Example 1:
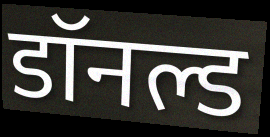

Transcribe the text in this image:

डॉनल्ड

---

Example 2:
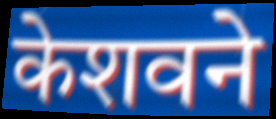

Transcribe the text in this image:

केशवने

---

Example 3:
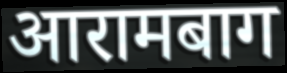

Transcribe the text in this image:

आरामबाग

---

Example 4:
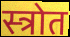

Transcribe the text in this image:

स्त्रोत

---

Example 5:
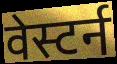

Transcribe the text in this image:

वेस्टर्न